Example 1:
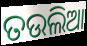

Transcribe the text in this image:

ତଉଲିଆ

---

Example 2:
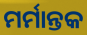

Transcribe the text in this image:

ମର୍ମାନ୍ତକ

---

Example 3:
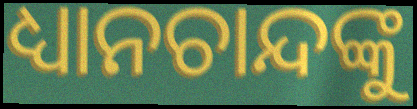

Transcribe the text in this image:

ଧ୍ୟାନଚାନ୍ଦଙ୍କୁ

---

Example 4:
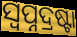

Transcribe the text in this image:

ସ୍ୱପ୍ନଦ୍ରଷ୍ଟା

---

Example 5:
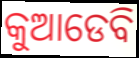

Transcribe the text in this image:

କୁଆଡେବି